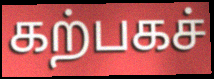
கற்பகச்